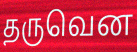
தருவென